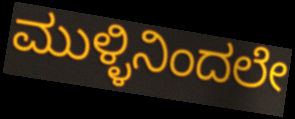
ಮುಳ್ಳಿನಿಂದಲೇ